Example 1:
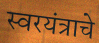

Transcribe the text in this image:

स्वरयंत्राचे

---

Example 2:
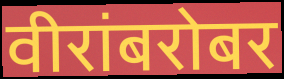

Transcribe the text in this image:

वीरांबरोबर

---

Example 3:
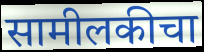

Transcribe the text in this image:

सामीलकीचा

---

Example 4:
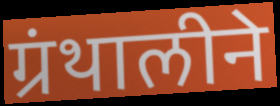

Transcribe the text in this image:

ग्रंथालीने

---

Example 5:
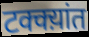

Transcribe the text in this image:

टक्क्य़ांत